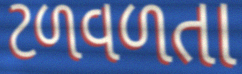
ટળવળતા